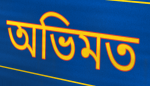
অভিমত